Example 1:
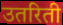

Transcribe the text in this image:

उतरिती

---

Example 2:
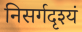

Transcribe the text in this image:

निसर्गदृश्यं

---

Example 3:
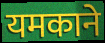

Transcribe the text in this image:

यमकाने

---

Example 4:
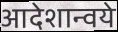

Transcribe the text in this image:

आदेशान्वये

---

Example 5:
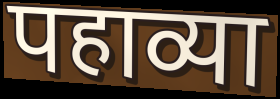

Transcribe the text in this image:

पहाव्या